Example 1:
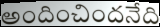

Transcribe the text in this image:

అందించిందనేది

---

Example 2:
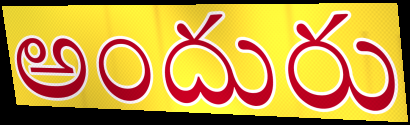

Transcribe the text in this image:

అందురు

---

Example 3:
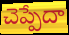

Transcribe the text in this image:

చెప్పేదా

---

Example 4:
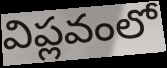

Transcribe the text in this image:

విప్లవంలో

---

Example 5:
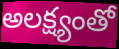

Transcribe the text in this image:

అలక్ష్యంతో